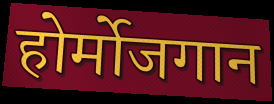
होर्मोजगान